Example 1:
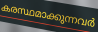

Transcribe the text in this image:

കരസ്ഥമാക്കുന്നവർ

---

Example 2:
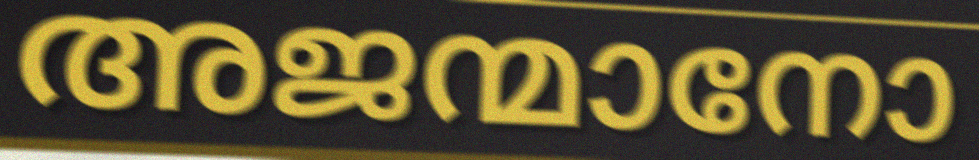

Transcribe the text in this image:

അജന്മാനോ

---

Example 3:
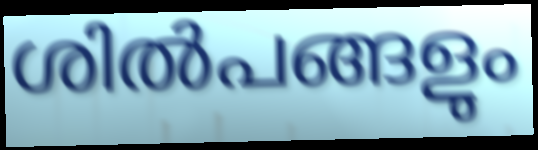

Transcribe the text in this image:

ശിൽപങ്ങളും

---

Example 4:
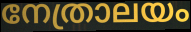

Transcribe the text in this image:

നേത്രാലയം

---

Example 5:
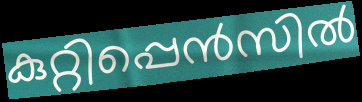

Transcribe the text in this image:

കുറ്റിപ്പെൻസിൽ